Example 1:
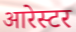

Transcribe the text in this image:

आरेस्टर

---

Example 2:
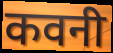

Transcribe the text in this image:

कवनी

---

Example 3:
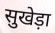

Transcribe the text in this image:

सुखेड़ा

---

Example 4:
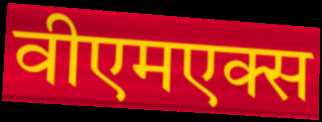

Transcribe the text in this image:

वीएमएक्स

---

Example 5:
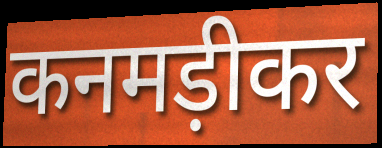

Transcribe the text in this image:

कनमड़ीकर